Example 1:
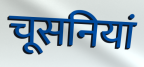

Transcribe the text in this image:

चूसनियां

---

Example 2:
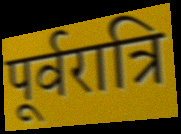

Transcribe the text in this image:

पूर्वरात्रि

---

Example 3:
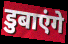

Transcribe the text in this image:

डुबाएंगे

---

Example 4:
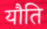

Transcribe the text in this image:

यौति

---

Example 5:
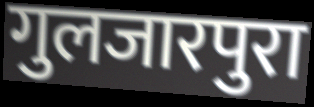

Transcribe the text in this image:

गुलजारपुरा